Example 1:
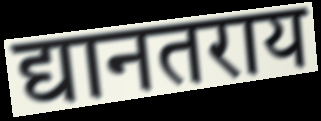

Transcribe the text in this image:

द्यानतराय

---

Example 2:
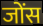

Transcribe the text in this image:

जोंस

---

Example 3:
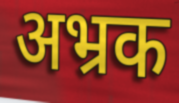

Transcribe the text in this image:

अभ्रक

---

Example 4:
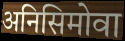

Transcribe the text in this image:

अनिसिमोवा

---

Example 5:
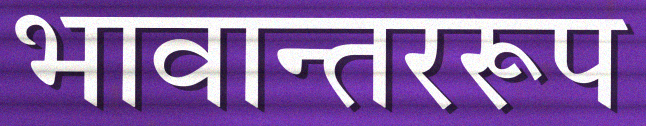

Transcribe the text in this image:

भावान्तररूप